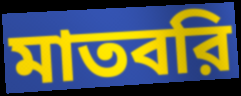
মাতবরি